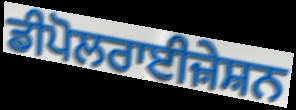
ਡੀਪੋਲਰਾਈਜ਼ੇਸ਼ਨ